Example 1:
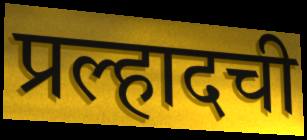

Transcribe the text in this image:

प्रल्हादची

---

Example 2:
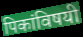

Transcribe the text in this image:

पिकांविषयी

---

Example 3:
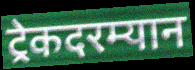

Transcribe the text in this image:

ट्रेकदरम्यान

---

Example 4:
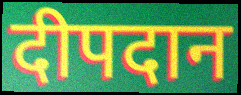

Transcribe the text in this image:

दीपदान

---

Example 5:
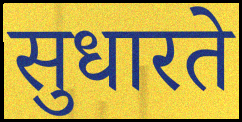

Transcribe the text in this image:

सुधारते